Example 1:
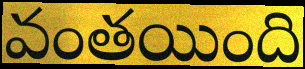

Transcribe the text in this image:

వంతయింది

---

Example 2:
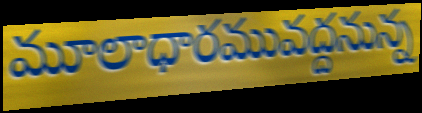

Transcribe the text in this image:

మూలాధారమువద్దనున్న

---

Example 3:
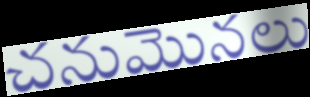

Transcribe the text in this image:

చనుమొనలు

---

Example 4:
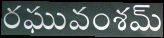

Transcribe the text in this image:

రఘువంశమ్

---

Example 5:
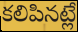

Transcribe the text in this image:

కలిపినట్లే